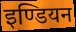
इण्डियन